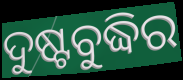
ଦୁଷ୍ଟବୁଦ୍ଧିର